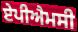
ਏਪੀਐਮਸੀ